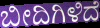
ಬೀದಿಗಿಳಿದೆ